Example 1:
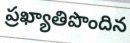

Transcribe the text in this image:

ప్రఖ్యాతిపొందిన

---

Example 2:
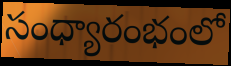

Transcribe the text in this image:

సంధ్యారంభంలో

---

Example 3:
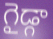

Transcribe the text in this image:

గైడ్గా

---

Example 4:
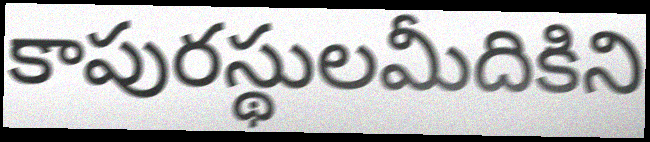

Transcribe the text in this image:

కాపురస్థులమీదికిని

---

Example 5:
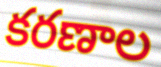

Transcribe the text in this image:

కరణాల